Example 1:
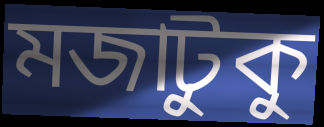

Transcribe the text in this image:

মজাটুকু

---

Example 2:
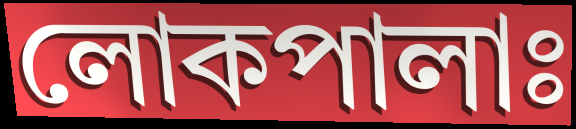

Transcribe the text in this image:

লোকপালাঃ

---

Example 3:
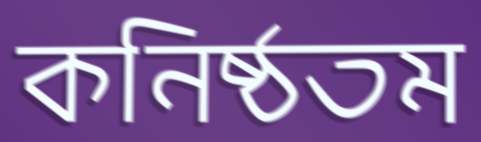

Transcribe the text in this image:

কনিষ্ঠতম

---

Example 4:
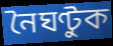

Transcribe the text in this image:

নৈঘণ্টুক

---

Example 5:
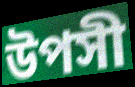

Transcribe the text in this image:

উপসী